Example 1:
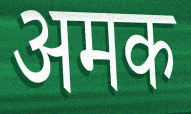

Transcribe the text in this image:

अमक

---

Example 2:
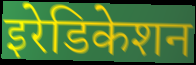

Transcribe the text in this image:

इरेडिकेशन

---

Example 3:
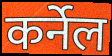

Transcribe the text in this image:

कर्नेल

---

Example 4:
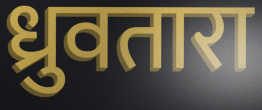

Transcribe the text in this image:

ध्रुवतारा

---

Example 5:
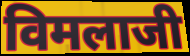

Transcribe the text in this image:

विमलाजी